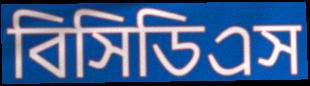
বিসিডিএস